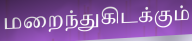
மறைந்துகிடக்கும்